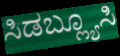
ಸಿಡಬ್ಲ್ಯೂಸಿ